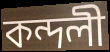
কন্দলী